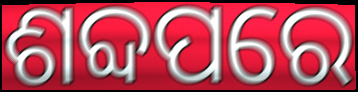
ଶବ୍ଦପରେ